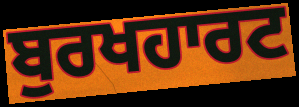
ਬੁਰਖਹਾਰਟ